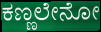
ಕಣ್ಣಲೇನೋ